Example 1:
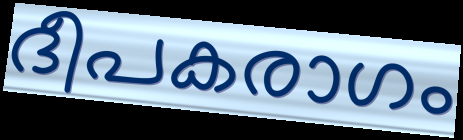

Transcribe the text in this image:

ദീപകരാഗം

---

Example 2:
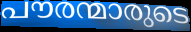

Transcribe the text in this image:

പൗരന്മാരുടെ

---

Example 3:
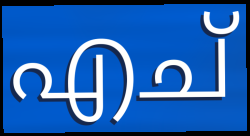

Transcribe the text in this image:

എച്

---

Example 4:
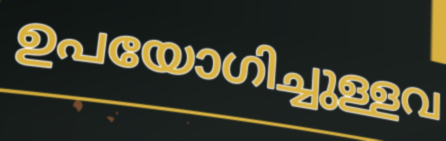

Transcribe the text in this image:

ഉപയോഗിച്ചുള്ളവ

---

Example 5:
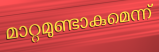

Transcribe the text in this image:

മാറ്റമുണ്ടാകുമെന്ന്